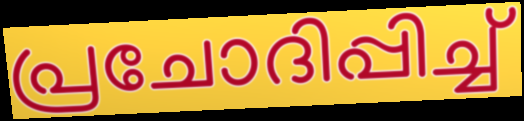
പ്രചോദിപ്പിച്ച്